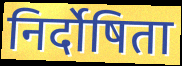
निर्दोषिता